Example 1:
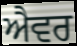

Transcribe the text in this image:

ਐਵਰ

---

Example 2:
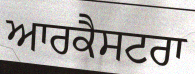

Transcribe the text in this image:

ਆਰਕੈਸਟਰਾ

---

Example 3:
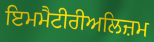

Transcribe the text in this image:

ਇਮਮੈਟੀਰੀਅਲਿਜ਼ਮ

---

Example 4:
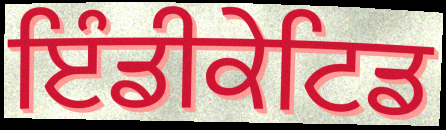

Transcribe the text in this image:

ਇੰਡੀਕੇਟਿਡ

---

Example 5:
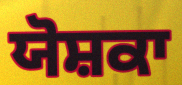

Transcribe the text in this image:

ਯੋਸ਼ਕਾ